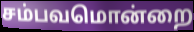
சம்பவமொன்றை